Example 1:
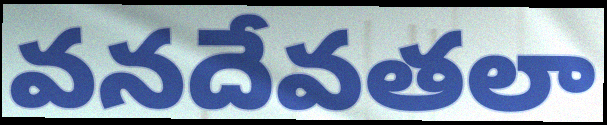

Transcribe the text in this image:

వనదేవతలా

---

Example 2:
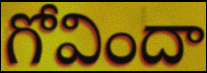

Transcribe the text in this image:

గోవిందా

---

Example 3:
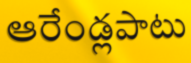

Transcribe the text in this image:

ఆరేండ్లపాటు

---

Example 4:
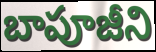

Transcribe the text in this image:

బాపూజీని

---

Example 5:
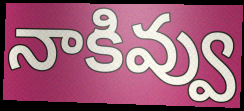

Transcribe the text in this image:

నాకివ్వు